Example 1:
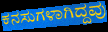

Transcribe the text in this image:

ಕನಸುಗಳಾಗಿದ್ದವು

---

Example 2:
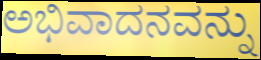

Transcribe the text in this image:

ಅಭಿವಾದನವನ್ನು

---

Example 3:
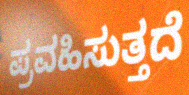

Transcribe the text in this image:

ಪ್ರವಹಿಸುತ್ತದೆ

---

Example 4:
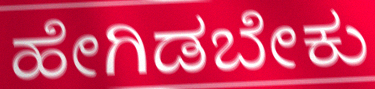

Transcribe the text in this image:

ಹೇಗಿಡಬೇಕು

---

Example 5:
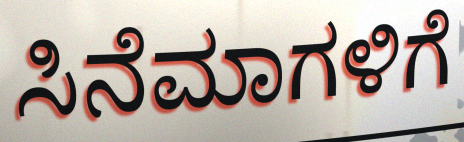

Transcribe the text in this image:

ಸಿನೆಮಾಗಳಿಗೆ